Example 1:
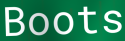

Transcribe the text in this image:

Boots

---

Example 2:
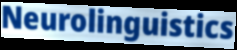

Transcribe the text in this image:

Neurolinguistics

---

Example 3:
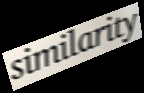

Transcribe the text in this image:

similarity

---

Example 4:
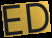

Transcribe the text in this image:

ED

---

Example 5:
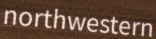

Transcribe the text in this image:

northwestern